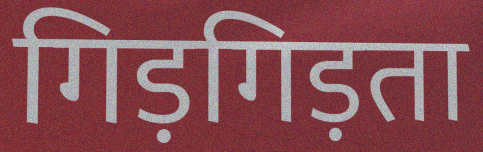
गिड़गिड़ता